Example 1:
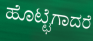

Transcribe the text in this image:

ಹೊಟ್ಟೆಗಾದರೆ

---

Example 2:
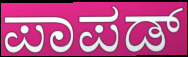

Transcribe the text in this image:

ಪಾಪಡ್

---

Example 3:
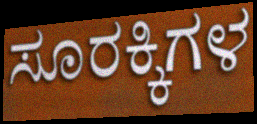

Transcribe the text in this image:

ಸೂರಕ್ಕಿಗಳ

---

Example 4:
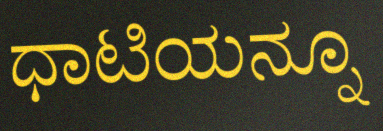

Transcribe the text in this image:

ಧಾಟಿಯನ್ನೂ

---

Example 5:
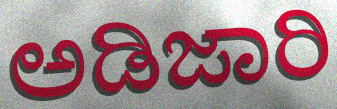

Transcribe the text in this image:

ಅಡಿಜಾರಿ